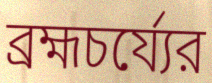
ব্রহ্মচর্য্যের